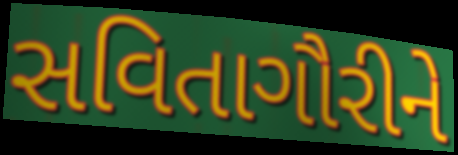
સવિતાગૌરીને